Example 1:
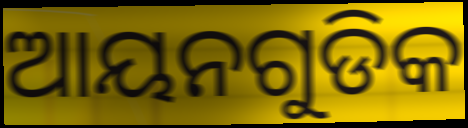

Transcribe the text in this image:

ଆୟନଗୁଡିକ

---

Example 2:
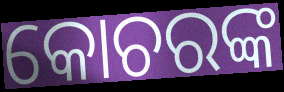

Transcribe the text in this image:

କୋଚରଙ୍କ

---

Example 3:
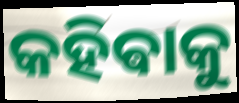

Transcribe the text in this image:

କହିଵାକୁ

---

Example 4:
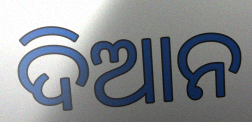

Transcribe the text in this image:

ଦିଆନ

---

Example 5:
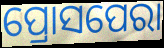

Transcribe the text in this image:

ପ୍ରୋସପେରା